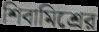
শিবামিশ্রের